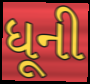
ધૂની